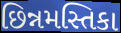
છિન્નમસ્તિકા